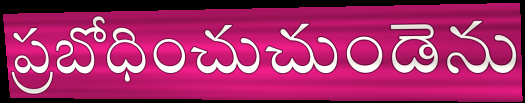
ప్రబోధించుచుండెను